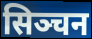
सिञ्चन